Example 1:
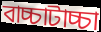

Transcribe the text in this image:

বাচ্চাটাচ্চা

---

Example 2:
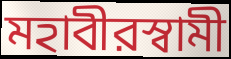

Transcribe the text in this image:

মহাবীরস্বামী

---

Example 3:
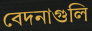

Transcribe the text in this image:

বেদনাগুলি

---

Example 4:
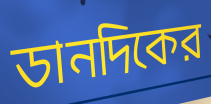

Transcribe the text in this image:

ডানদিকের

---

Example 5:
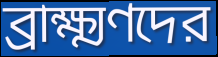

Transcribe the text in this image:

ব্রাক্ষ্মণদের